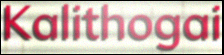
Kalithogai